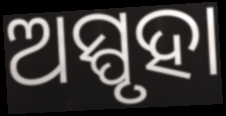
ଅସ୍ପୃହା